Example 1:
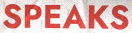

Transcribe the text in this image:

SPEAKS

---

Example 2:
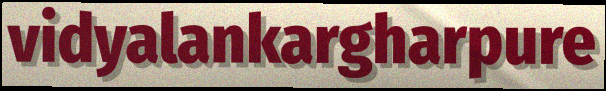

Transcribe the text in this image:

vidyalankargharpure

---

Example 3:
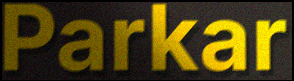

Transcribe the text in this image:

Parkar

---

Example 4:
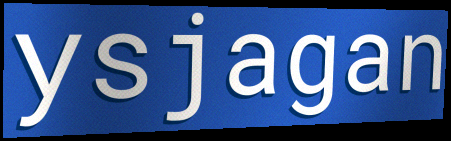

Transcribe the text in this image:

ysjagan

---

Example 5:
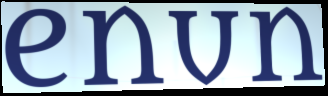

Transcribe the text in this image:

enun